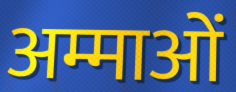
अम्माओं